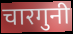
चारगुनी